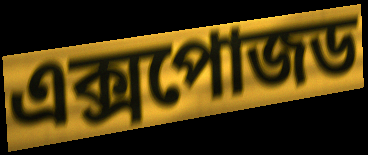
এক্সপোজড